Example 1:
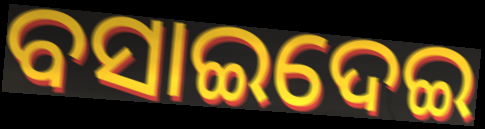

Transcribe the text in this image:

ବସାଇଦେଇ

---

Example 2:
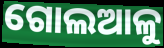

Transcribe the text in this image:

ଗୋଲଆଳୁ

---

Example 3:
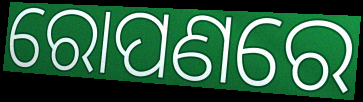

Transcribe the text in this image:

ରୋପଣରେ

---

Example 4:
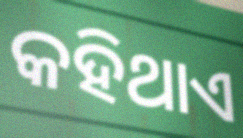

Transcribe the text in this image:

କହିଥାଏ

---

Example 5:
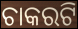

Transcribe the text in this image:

ଚାକରଟି